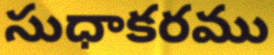
సుధాకరము